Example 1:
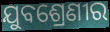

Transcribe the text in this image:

ଯୁବଶ୍ରେଣୀର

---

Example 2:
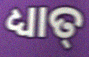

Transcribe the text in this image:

ଧ୍ୟାତ୍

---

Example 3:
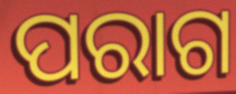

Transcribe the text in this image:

ପରାଗ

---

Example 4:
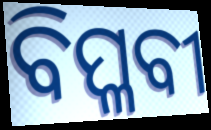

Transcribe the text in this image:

ବିପ୍ଳବୀ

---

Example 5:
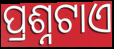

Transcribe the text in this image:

ପ୍ରଶ୍ନଟାଏ